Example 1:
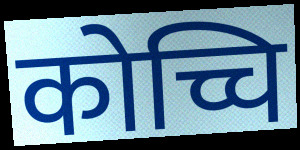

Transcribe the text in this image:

कोच्चि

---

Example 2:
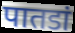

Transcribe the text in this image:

पातडां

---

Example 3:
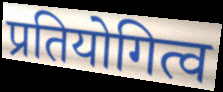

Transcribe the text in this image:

प्रतियोगित्व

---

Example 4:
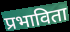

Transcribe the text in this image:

प्रभाविता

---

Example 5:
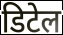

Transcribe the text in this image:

डिटेल